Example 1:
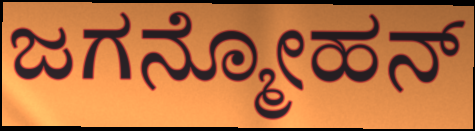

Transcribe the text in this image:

ಜಗನ್ಮೋಹನ್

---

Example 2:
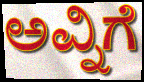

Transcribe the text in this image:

ಅವ್ನಿಗೆ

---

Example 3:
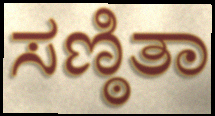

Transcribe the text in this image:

ಸಣ್ಠಿತಾ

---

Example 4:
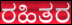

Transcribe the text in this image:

ರಹಿತರ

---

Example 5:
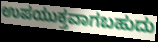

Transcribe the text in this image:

ಉಪಯುಕ್ತವಾಗಬಹುದು